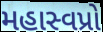
મહાસ્વપ્રો